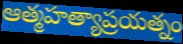
ఆత్మహత్యాప్రయత్నం